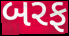
બરફ